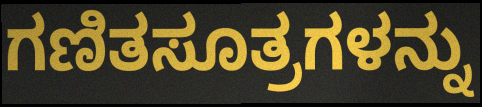
ಗಣಿತಸೂತ್ರಗಳನ್ನು